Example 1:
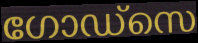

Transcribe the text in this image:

ഗോഡ്സെ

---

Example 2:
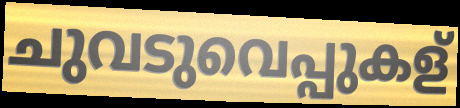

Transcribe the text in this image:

ചുവടുവെപ്പുകള്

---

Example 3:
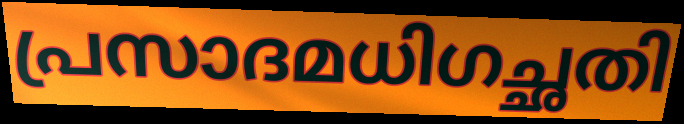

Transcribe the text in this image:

പ്രസാദമധിഗച്ഛതി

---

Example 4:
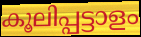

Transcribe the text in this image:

കൂലിപ്പട്ടാളം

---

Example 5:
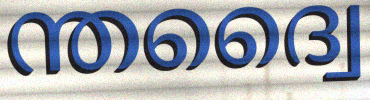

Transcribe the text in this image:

ന്തദ്വൈ